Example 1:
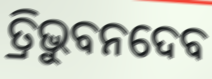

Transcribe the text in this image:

ତ୍ରିଭୁବନଦେବ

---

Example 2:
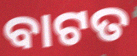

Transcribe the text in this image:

ବାଟତ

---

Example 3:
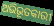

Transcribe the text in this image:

ଅଭିଭୂତକାରୀ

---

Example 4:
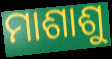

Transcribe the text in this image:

ମାଶାଶୁ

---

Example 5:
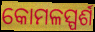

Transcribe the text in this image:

କୋମଳସ୍ପର୍ଶ